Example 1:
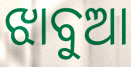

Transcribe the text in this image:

ଝାବୁଆ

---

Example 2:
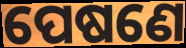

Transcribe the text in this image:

ପେଷଣେ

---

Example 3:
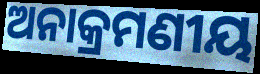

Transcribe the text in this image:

ଅନାକ୍ରମଣୀୟ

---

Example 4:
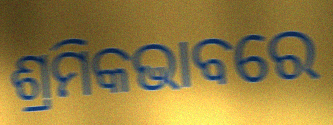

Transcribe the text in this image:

ଶ୍ରମିକଭାବରେ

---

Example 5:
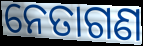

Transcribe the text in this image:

ନେତାଗଣ